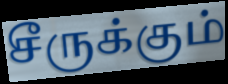
சீருக்கும்